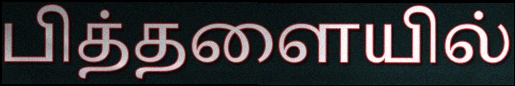
பித்தளையில்